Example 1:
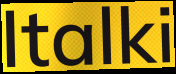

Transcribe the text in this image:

Italki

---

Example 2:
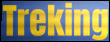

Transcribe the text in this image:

Treking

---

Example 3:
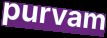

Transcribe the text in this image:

purvam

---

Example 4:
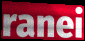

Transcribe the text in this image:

ranei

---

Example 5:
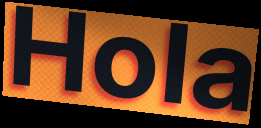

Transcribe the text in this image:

Hola